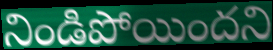
నిండిపోయిందని